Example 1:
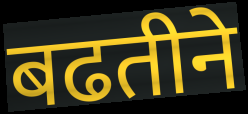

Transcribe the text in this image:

बढतीने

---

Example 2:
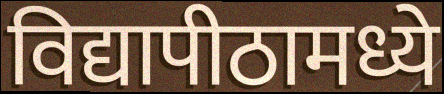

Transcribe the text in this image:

विद्यापीठामध्ये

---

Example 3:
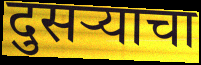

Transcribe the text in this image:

दुसऱ्याचा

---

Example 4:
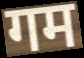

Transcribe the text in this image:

गम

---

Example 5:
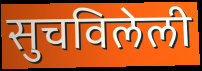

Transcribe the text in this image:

सुचविलेली